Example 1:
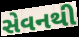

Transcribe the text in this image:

સેવનથી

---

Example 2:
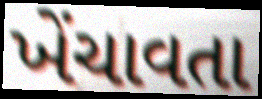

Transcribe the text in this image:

ખેંચાવતા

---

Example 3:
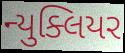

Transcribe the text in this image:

ન્યુક્લિયર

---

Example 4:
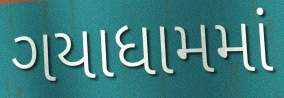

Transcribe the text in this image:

ગયાધામમાં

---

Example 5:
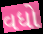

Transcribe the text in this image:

વધો